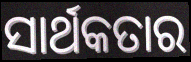
ସାର୍ଥକତାର